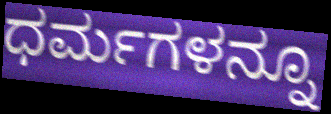
ಧರ್ಮಗಳನ್ನೂ